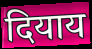
दियाय